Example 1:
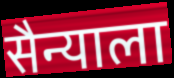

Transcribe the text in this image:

सैन्याला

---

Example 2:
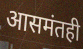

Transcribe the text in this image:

आसमंतही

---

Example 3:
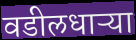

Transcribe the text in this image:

वडीलधाऱ्या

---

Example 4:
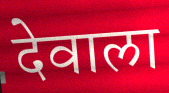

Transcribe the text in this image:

देवाला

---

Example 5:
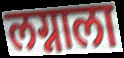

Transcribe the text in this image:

लग्नाला